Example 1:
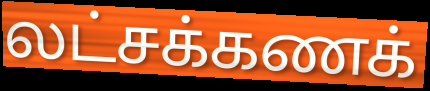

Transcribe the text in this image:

லட்சக்கணக்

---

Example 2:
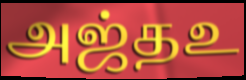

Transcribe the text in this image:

அஜ்தஉ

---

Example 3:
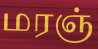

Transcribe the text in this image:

மரஞ்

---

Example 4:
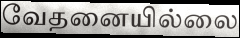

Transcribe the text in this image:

வேதனையில்லை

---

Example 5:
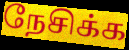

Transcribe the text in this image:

நேசிக்க